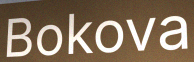
Bokova